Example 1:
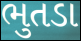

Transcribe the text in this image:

ભુતડા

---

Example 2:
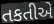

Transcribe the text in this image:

તકતીએ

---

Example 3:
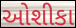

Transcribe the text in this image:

ઓશીકા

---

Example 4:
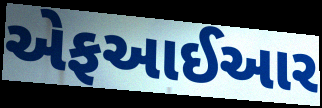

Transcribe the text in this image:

એફઆઈઆર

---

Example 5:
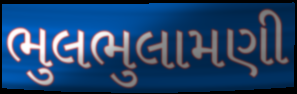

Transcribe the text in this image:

ભુલભુલામણી